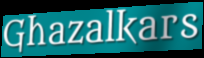
Ghazalkars